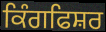
ਕਿੰਗਫਿਸ਼ਰ